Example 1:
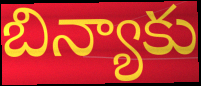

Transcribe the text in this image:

బిన్యాకు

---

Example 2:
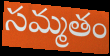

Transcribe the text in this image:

సమ్మతం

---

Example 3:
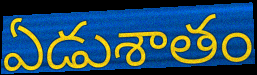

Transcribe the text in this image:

ఏడుశాతం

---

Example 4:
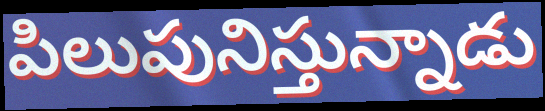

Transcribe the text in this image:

పిలుపునిస్తున్నాడు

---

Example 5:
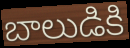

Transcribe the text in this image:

బాలుడికి